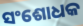
ସଂଶୋଧକ